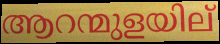
ആറന്മുളയില്